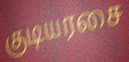
குடியரசை